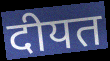
दीयत